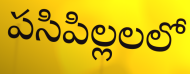
పసిపిల్లలలో